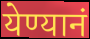
येण्यानं